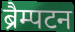
ब्रैम्पटन